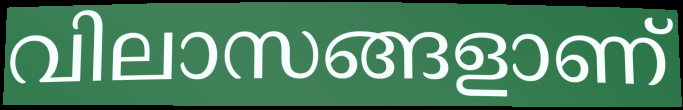
വിലാസങ്ങളാണ്